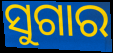
ସୁଗାର